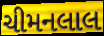
ચીમનલાલ